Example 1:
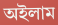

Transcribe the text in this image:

অইলাম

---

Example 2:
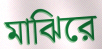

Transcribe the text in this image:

মাঝিরে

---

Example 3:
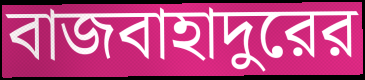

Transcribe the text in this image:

বাজবাহাদুরের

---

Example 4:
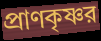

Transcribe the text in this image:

প্রাণকৃষ্ণর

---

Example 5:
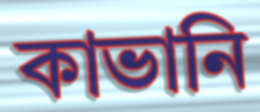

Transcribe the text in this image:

কাভানি